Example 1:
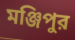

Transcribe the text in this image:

মঞ্জিপুর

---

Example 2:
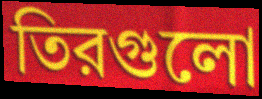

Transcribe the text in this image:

তিরগুলো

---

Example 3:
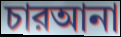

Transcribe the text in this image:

চারআনা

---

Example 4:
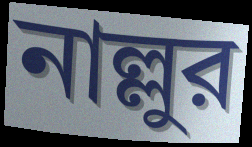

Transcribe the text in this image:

নাল্লুর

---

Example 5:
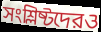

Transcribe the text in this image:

সংশ্লিষ্টদেরও